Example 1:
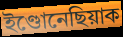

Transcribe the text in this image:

ইণ্ডোনেছিয়াক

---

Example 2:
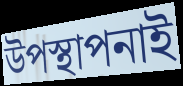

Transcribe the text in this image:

উপস্থাপনাই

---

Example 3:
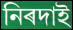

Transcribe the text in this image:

নিৰদাই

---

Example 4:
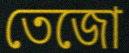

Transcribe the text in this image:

তেজো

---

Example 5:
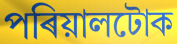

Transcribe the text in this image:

পৰিয়ালটোক